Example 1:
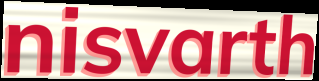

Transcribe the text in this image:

nisvarth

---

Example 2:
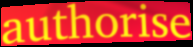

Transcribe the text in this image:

authorise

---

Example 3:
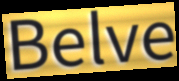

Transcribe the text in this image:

Belve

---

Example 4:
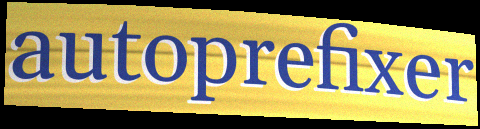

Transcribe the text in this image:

autoprefixer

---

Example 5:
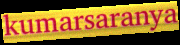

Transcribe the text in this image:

kumarsaranya